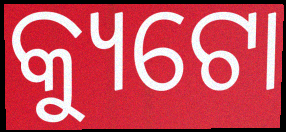
କ୍ୟୁଟୋ